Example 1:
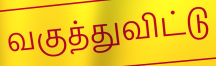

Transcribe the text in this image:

வகுத்துவிட்டு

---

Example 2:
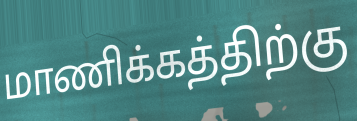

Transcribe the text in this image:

மாணிக்கத்திற்கு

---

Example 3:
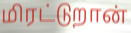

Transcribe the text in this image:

மிரட்டுறான்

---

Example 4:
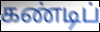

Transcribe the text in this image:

கண்டிப்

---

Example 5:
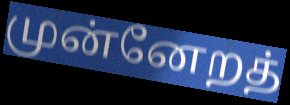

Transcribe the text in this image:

முன்னேறத்